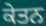
ਕੇਤਨ